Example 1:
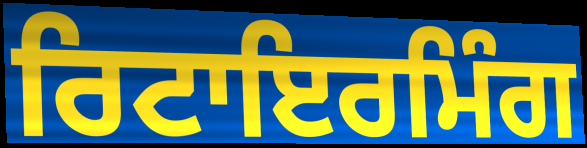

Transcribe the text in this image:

ਰਿਟਾਇਰਮਿੰਗ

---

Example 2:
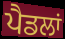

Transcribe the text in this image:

ਪੈਡਲਾਂ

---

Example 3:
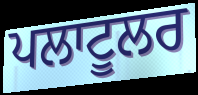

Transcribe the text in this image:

ਪਲਾਟੂਲਰ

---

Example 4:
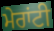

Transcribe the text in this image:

ਮੇਰਾਂਟੀ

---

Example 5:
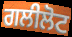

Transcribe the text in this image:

ਗਲੀਲੋਟ